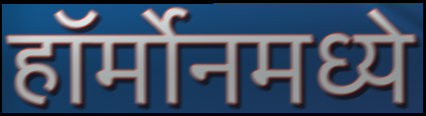
हॉर्मोनमध्ये